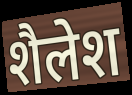
शैलेश